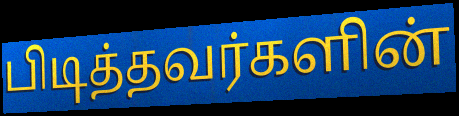
பிடித்தவர்களின்